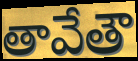
తావేతౌ